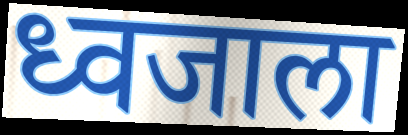
ध्वजाला